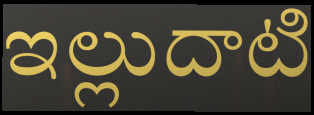
ఇల్లుదాటి